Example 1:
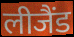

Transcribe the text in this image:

लीजैंड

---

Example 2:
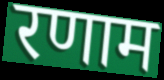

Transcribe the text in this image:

रणाम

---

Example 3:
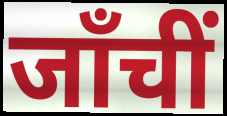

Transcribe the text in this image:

जाँचीं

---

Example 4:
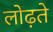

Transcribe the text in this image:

लोढ़ते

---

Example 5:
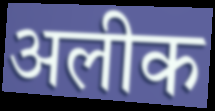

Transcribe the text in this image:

अलीक